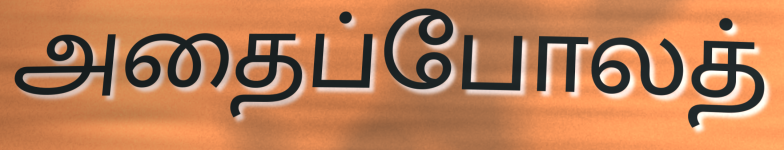
அதைப்போலத்